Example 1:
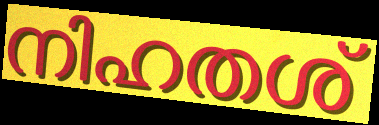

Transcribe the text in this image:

നിഹതശ്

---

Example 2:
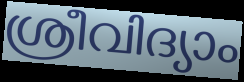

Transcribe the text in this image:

ശ്രീവിദ്യാം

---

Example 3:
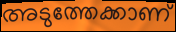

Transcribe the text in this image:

അടുത്തേക്കാണ്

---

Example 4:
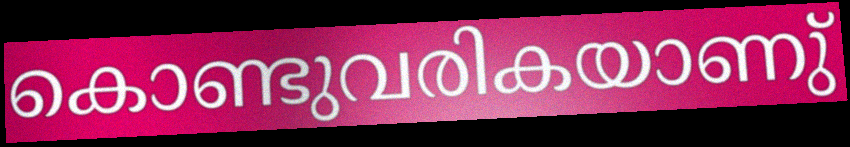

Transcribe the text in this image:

കൊണ്ടുവരികയാണു്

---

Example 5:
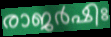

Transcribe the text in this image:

രാജർഷിഃ